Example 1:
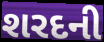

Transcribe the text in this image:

શરદની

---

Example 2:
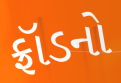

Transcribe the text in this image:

ફ્રૉડનો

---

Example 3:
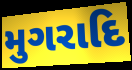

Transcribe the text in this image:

મુગરાદિ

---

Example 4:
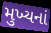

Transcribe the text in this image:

મુખ્યનાં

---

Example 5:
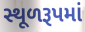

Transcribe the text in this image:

સ્થૂળરૂપમાં